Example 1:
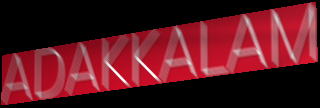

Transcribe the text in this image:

ADAKKALAM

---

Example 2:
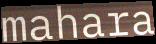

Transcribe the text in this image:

mahara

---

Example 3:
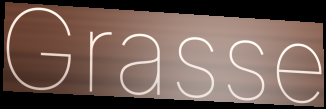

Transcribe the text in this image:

Grasse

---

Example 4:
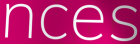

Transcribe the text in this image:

nces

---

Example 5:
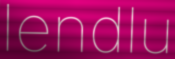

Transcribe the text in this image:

lendlu